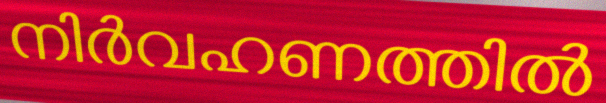
നിർവഹണത്തിൽ